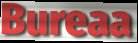
Bureaa